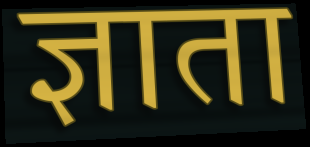
ज्ञाता